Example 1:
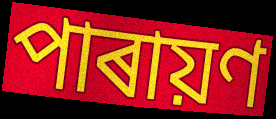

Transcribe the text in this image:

পাৰায়ণ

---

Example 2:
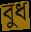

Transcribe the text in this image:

বুধ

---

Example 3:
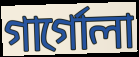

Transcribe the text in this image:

গাৰ্গোলা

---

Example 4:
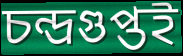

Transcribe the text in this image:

চন্দ্ৰগুপ্তই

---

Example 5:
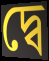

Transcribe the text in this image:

দ্বে